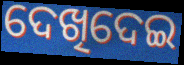
ଦେଖିଦେଇ